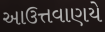
આઉત્તવાણયે